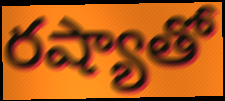
రష్యాతో